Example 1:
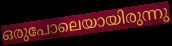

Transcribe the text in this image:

ഒരുപോലെയായിരുന്നു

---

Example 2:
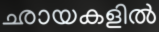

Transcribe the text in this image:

ഛായകളിൽ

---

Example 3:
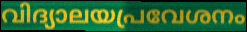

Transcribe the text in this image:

വിദ്യാലയപ്രവേശനം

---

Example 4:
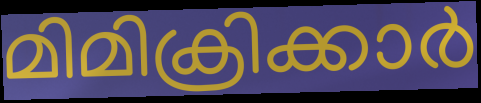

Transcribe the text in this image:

മിമിക്രിക്കാർ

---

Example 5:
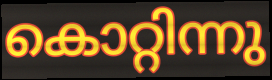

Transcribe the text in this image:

കൊറ്റിന്നു